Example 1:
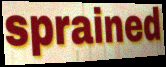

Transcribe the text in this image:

sprained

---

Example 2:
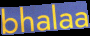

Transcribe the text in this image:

bhalaa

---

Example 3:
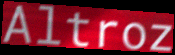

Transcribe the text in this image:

Altroz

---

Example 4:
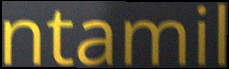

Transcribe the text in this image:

ntamil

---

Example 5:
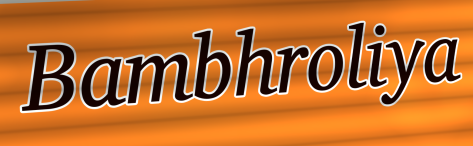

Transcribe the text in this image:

Bambhroliya